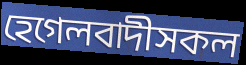
হেগেলবাদীসকল